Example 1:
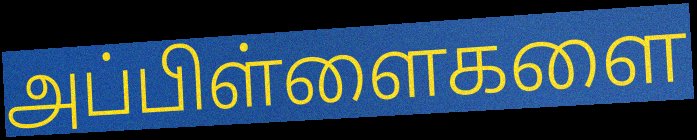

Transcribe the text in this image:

அப்பிள்ளைகளை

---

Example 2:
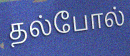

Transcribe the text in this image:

தல்போல்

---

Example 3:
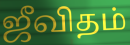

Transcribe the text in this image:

ஜீவிதம்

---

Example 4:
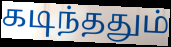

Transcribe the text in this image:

கடிந்ததும்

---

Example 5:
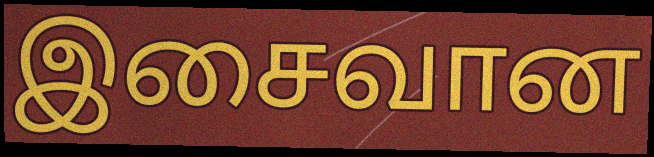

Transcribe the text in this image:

இசைவான